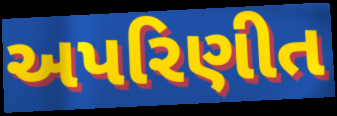
અપરિણીત